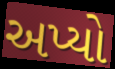
અપ્યો